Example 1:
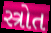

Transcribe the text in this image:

સ્ત્રોત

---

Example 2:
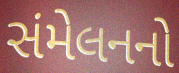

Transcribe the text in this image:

સંમેલનનો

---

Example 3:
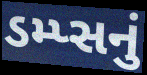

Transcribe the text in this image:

ડમ્પ્સનું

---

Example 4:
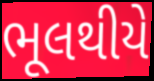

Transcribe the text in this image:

ભૂલથીયે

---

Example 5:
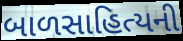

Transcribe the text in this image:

બાળસાહિત્યની